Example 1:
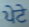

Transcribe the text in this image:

ਪੇਟੇ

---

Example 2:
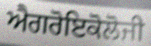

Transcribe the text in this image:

ਐਗਰੋਇਕੋਲੋਜੀ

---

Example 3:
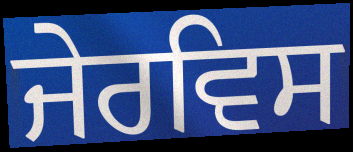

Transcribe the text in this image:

ਜੇਰਵਿਸ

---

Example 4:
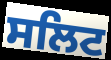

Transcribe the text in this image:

ਸਲਿਟ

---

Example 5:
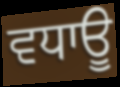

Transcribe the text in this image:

ਵਧਾਊ